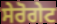
ਸੇਰੋਗੇਟ